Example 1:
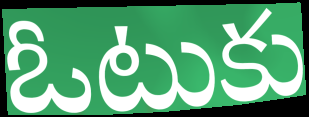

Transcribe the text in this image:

ఓటుకు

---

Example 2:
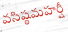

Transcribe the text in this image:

వసిష్ఠమహర్షీ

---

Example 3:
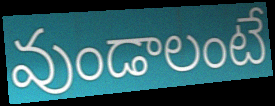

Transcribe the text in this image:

వుండాలంటే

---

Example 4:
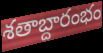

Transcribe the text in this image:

శతాబ్దారంభం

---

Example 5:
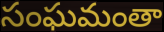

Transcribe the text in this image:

సంఘమంతా